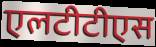
एलटीटीएस